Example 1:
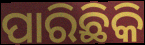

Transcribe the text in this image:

ପାରିଛିକି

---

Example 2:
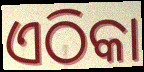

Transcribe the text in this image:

ଏଠିକା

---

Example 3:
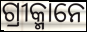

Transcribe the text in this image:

ଗ୍ରୀକ୍ମାନେ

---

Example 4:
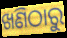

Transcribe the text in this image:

ଖଣିଠାରୁ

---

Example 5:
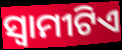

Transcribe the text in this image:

ସ୍ୱାମୀଟିଏ